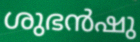
ശുഭൻഷു